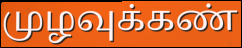
முழவுக்கண்